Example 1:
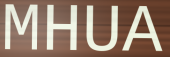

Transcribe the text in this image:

MHUA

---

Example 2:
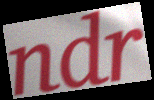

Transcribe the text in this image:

ndr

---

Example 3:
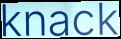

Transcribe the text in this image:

knack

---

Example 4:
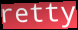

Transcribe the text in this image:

retty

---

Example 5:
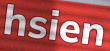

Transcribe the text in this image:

hsien